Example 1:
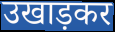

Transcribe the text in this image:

उखाड़कर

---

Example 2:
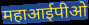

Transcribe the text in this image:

महाआईपीओ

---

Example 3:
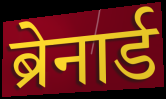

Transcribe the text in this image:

ब्रेनार्ड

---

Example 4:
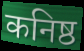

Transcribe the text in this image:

कनिष्ठ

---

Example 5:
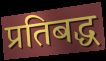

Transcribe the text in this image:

प्रतिबद्ध